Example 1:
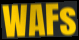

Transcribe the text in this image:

WAFs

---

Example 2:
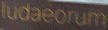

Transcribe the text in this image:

Iudaeorum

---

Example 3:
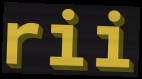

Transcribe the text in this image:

rii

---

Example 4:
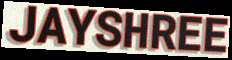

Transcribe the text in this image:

JAYSHREE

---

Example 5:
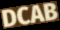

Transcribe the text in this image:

DCAB